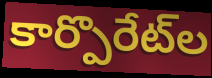
కార్పొరేట్‌ల